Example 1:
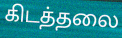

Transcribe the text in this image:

கிடத்தலை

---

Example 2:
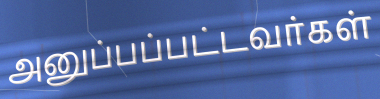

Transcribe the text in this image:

அனுப்பப்பட்டவர்கள்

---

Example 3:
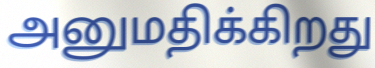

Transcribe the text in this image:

அனுமதிக்கிறது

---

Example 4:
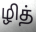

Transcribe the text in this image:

ழித்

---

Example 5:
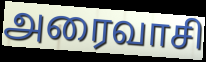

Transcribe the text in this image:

அரைவாசி